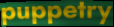
puppetry